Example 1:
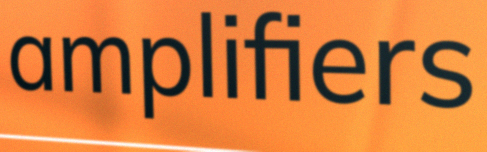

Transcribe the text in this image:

amplifiers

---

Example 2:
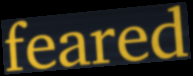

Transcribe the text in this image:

feared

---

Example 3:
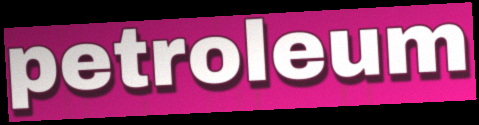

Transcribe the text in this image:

petroleum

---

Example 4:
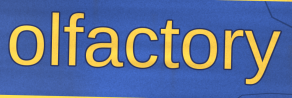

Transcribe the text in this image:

olfactory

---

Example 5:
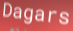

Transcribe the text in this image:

Dagars